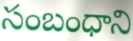
సంబంధాని